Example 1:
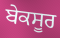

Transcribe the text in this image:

ਬੇਕਸੂਰ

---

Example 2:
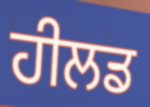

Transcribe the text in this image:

ਹੀਲਡ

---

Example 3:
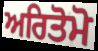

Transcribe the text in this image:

ਅਰਿਤੋਮੋ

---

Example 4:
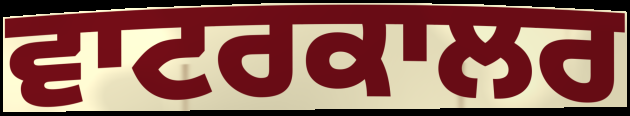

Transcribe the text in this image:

ਵਾਟਰਕਾਲਰ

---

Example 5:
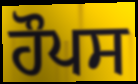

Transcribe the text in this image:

ਹੌਪਸ